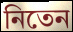
নিতেন